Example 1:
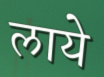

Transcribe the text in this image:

लाये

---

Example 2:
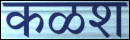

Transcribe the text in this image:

कळश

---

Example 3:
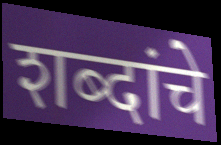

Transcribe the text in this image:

शब्दांचे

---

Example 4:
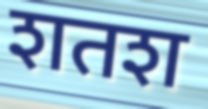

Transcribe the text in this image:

शतश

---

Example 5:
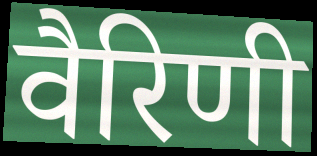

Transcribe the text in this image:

वैरिणी